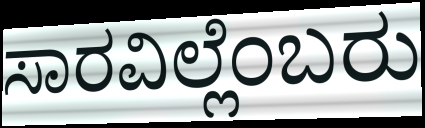
ಸಾರವಿಲ್ಲೆಂಬರು